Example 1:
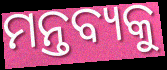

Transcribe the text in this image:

ମନ୍ତବ୍ୟକୁ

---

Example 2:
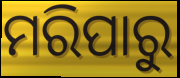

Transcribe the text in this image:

ମରିପାରୁ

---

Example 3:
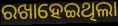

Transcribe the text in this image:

ରଖାହେଇଥିଲା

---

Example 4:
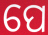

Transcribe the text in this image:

ପେ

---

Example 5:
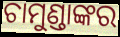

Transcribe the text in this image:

ଚାମୁଣ୍ଡାଙ୍କର